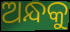
ଅନ୍ଧକୁ